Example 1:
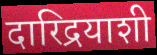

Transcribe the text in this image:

दारिद्रयाशी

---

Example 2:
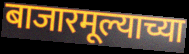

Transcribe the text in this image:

बाजारमूल्याच्या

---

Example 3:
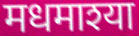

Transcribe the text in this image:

मधमाश्या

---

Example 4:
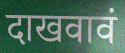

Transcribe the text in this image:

दाखवावं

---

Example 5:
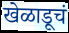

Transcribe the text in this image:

खेळाडूचं